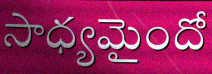
సాధ్యమైందో